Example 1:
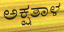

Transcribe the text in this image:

ಅಕ್ಷತಾಳ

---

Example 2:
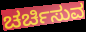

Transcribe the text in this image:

ಚರ್ಚಿಸುವ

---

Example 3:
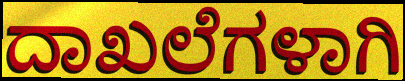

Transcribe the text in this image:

ದಾಖಲೆಗಳಾಗಿ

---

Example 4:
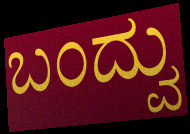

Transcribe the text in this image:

ಬಂದ್ವು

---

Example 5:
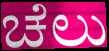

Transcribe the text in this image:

ಚೆಲು